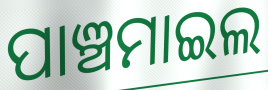
ପାଞ୍ଚମାଇଲ